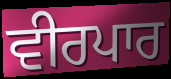
ਵੀਰਪਾਰ